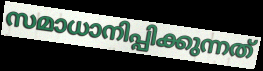
സമാധാനിപ്പിക്കുന്നത്